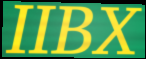
IIBX